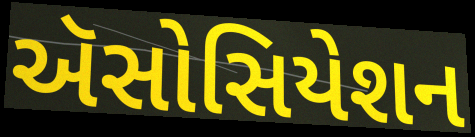
ઍસોસિયેશન